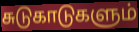
சுடுகாடுகளும்